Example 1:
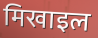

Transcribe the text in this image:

मिखाइल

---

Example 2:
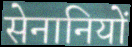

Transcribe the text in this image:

सेनानियों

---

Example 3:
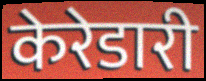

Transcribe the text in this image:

केरेडारी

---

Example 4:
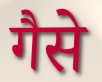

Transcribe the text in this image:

गैसे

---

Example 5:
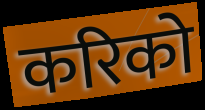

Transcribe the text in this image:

करिको